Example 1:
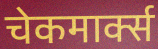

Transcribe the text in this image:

चेकमार्क्स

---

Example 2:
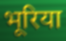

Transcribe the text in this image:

भूरिया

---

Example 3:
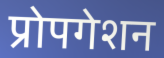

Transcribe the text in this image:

प्रोपगेशन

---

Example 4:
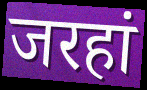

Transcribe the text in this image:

जरहां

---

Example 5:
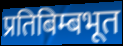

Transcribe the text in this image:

प्रतिबिम्बभूत